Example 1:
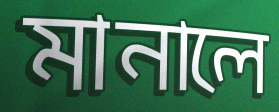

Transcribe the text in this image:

মানালে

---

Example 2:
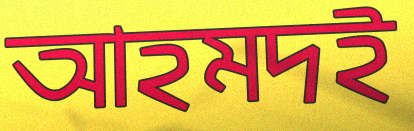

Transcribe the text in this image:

আহমদই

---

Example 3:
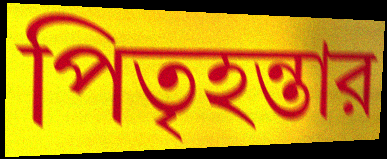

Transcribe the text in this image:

পিতৃহন্তার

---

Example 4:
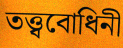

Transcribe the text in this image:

তত্ত্ববোধিনী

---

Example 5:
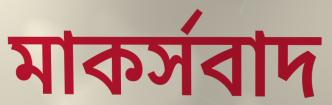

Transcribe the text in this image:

মাকর্সবাদ